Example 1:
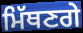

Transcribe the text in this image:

ਮਿੱਥਣਗੇ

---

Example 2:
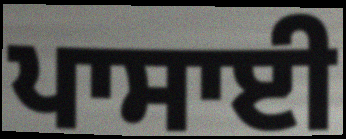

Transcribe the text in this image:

ਪਾਸਾਈ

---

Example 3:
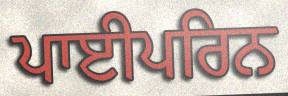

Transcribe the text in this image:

ਪਾਈਪਰਿਨ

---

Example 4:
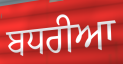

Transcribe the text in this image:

ਬਧਰੀਆ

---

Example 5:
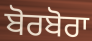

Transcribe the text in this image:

ਬੋਰਬੋਰਾ